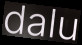
dalu